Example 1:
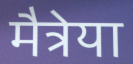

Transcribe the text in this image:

मैत्रेया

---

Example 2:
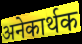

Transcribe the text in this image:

अनेकार्थक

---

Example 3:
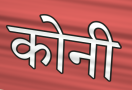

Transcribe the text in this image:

कोनी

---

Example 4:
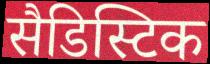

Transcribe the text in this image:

सैडिस्टिक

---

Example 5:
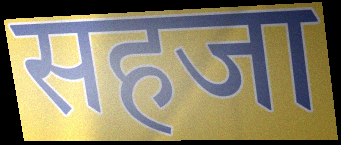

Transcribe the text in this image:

सहजा